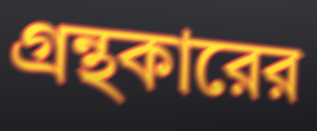
গ্রন্থকারের